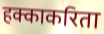
हक्काकरिता